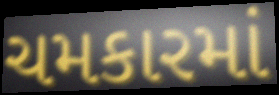
ચમકારમાં